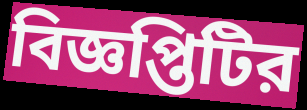
বিজ্ঞপ্তিটির